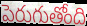
పెరుగుతోంది